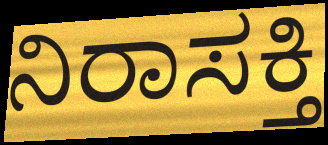
ನಿರಾಸಕ್ತಿ